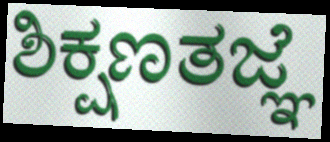
ಶಿಕ್ಷಣತಜ್ಞೆ